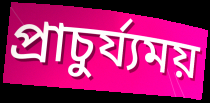
প্ৰাচুৰ্য্যময়